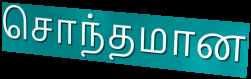
சொந்தமான